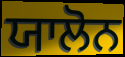
ਯਾਲੋਨ